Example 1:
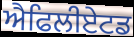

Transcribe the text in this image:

ਐਫਿਲੀਏਟਡ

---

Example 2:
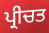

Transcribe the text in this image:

ਪ੍ਰੀਚਤ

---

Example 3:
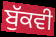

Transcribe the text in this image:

ਬੁੱਕਵੀ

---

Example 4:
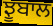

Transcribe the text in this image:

ਝੂਬਾਲ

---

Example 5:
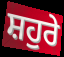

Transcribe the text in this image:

ਸ਼ਹੁਰੇ